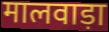
मालवाड़ा